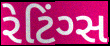
રેટિંગ્સ